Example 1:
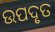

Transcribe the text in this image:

ଉପଦୃତ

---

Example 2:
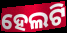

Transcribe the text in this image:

ହେଲଟି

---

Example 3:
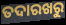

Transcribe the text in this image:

ତଦାରଖରୁ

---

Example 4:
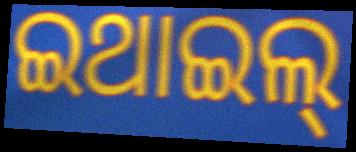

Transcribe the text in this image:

ଇଥାଇଲ୍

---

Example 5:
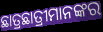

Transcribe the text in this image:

ଛାତ୍ରଛାତ୍ରୀମାନଙ୍କର